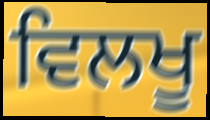
ਵਿਲਖੂ